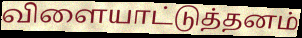
விளையாட்டுத்தனம்